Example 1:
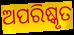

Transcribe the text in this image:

ଅପରିଷ୍କୃତ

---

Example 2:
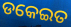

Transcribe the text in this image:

ଡକେଇତ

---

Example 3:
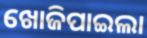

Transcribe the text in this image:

ଖୋଜିପାଇଲା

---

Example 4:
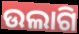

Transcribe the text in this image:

ଉଲାଗି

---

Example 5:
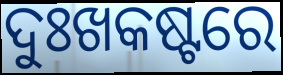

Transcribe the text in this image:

ଦୁଃଖକଷ୍ଟରେ